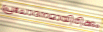
പ്രചോദനമായിരിക്കും